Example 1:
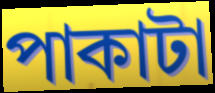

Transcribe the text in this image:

পাকাটা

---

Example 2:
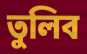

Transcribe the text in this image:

তুলিব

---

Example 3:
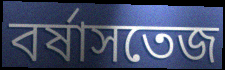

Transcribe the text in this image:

বর্ষাসতেজ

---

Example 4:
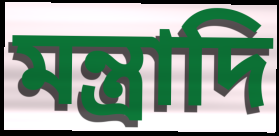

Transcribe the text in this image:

মন্ত্রাদি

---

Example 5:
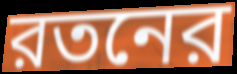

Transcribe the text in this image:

রতনের